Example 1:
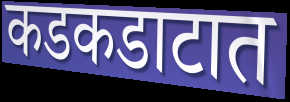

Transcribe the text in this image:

कडकडाटात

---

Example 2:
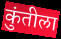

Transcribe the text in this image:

कुंतीला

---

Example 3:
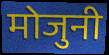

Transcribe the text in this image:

मोजुनी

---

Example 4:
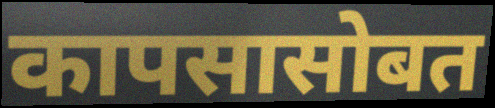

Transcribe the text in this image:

कापसासोबत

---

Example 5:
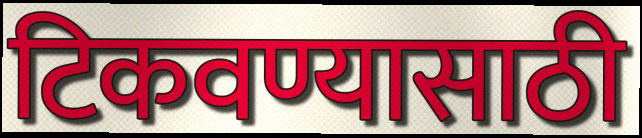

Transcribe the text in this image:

टिकवण्यासाठी